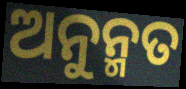
ଅନୁନ୍ମତ